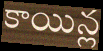
కాయిన్ల